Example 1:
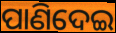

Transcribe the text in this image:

ପାଣିଦେଇ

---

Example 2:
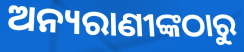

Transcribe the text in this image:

ଅନ୍ୟରାଣୀଙ୍କଠାରୁ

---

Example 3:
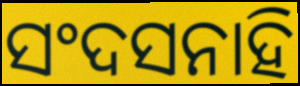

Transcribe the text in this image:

ସଂଦସନାହି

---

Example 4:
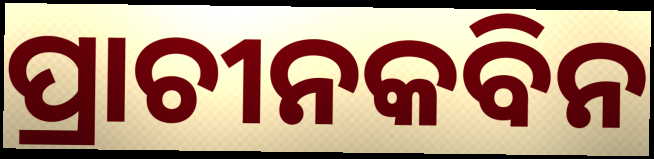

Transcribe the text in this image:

ପ୍ରାଚୀନକବିନ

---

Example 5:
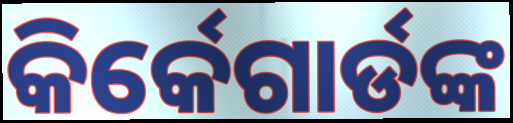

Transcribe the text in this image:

କିର୍କେଗାର୍ଡଙ୍କ